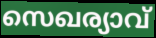
സെഖര്യാവ്